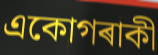
একোগৰাকী